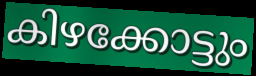
കിഴക്കോട്ടും